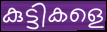
കുട്ടികളെ